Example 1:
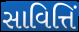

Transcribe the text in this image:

સાવિત્તિં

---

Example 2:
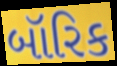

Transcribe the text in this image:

બૉરિક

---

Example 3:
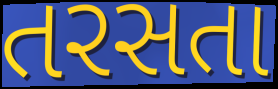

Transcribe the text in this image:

તરસતા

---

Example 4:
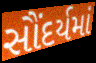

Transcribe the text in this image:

સૌંદર્યમાં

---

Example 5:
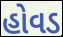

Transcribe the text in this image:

હોવડ